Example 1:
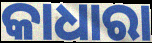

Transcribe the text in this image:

କାଧାରା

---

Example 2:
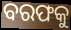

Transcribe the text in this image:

ବରଫକୁ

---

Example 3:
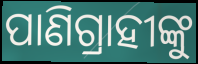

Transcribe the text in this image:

ପାଣିଗ୍ରାହୀଙ୍କୁ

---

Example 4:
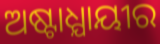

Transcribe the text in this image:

ଅଷ୍ଟାଧ୍ଯାୟୀର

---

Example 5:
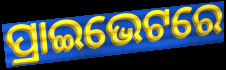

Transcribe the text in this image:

ପ୍ରାଇଭେଟରେ